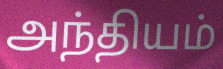
அந்தியம்